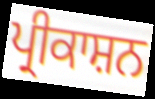
ਪ੍ਰੀਕਾਸ਼ਨ